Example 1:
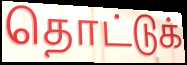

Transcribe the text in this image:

தொட்டுக்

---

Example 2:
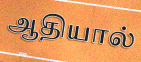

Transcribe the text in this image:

ஆதியால்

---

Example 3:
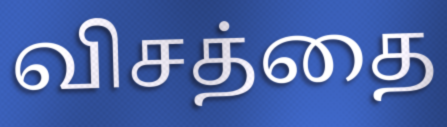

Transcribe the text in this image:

விசத்தை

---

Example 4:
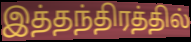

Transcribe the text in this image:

இத்தந்திரத்தில்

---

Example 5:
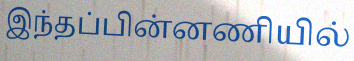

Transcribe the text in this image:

இந்தப்பின்னணியில்